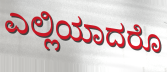
ಎಲ್ಲಿಯಾದರೊ